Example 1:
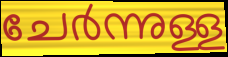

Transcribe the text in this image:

ചേർന്നുള്ള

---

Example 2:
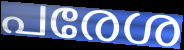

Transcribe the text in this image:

പരേശ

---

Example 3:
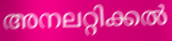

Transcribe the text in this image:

അനലറ്റിക്കൽ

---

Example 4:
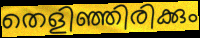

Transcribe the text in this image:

തെളിഞ്ഞിരിക്കും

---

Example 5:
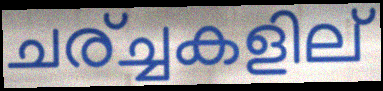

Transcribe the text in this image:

ചര്ച്ചകളില്